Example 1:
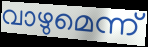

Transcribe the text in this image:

വാഴുമെന്ന്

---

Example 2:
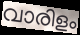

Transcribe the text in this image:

വാരിളം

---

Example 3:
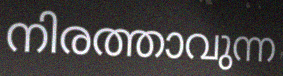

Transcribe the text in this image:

നിരത്താവുന്ന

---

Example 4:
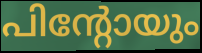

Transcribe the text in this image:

പിന്റോയും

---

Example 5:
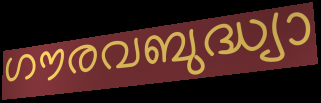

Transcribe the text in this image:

ഗൗരവബുദ്ധ്യാ